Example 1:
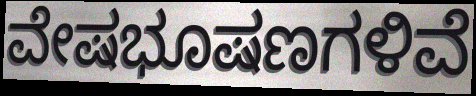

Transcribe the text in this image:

ವೇಷಭೂಷಣಗಳಿವೆ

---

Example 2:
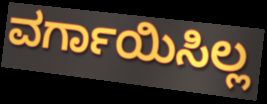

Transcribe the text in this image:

ವರ್ಗಾಯಿಸಿಲ್ಲ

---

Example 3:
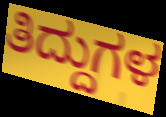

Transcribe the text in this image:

ತಿದ್ದುಗಳ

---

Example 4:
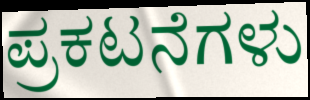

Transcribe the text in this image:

ಪ್ರಕಟನೆಗಳು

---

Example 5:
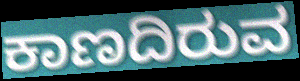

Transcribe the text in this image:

ಕಾಣದಿರುವ